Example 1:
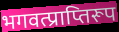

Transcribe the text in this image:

भगवत्प्राप्तिरूप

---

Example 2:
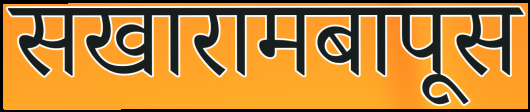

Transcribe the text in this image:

सखारामबापूस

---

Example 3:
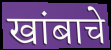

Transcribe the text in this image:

खांबाचे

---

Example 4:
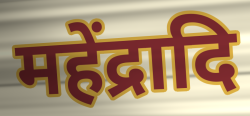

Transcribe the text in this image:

महेंद्रादि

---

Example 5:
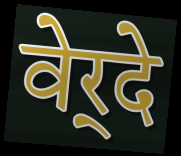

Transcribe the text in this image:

वेर्दे